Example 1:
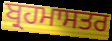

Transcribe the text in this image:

ਬ੍ਰਹਮਾਸਤਰ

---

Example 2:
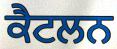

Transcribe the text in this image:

ਕੈਟਲਨ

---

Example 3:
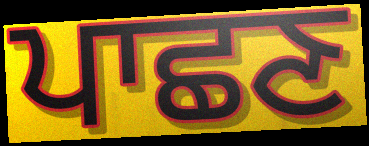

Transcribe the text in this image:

ਪਾਛਣ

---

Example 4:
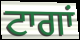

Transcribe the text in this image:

ਟਾਗਾਂ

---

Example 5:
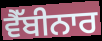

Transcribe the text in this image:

ਵੈੱਬੀਨਾਰ